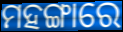
ମହଙ୍ଗାରେ